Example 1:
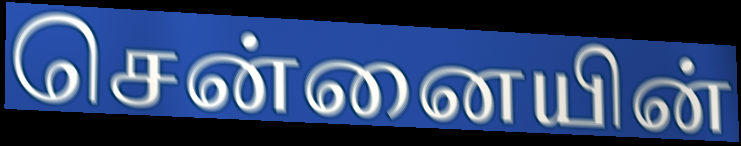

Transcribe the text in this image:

சென்னையின்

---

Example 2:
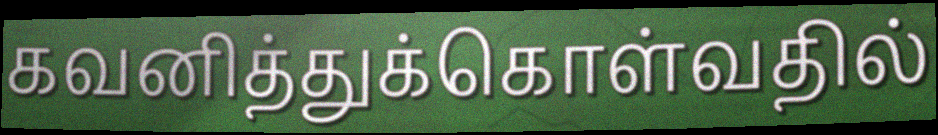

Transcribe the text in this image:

கவனித்துக்கொள்வதில்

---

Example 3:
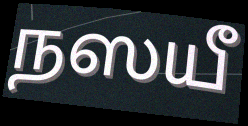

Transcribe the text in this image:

நஸயீ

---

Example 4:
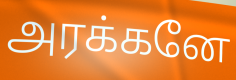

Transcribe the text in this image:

அரக்கனே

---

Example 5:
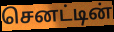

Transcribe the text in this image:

செனட்டின்